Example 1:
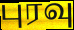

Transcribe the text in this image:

புரவு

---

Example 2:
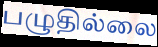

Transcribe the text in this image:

பழுதில்லை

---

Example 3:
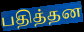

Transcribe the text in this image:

பதித்தன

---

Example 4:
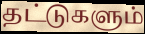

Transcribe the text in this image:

தட்டுகளும்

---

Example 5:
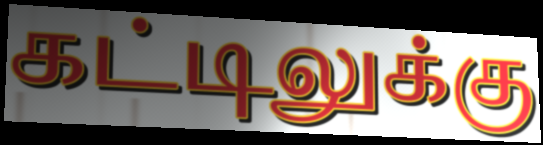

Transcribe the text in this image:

கட்டிலுக்கு